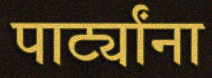
पार्ट्यांना